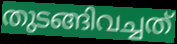
തുടങ്ങിവച്ചത്